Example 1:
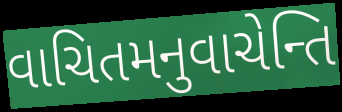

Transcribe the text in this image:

વાચિતમનુવાચેન્તિ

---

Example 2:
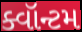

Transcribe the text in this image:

ક્વૉન્ટમ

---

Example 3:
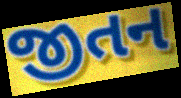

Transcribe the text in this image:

જીતન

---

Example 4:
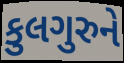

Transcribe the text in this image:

કુલગુરુને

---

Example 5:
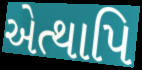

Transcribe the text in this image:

એત્થાપિ